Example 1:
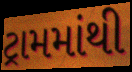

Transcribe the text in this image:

ટ્રામમાંથી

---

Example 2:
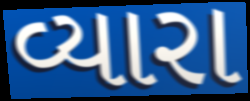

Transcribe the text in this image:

વ્યારા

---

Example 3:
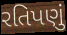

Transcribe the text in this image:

રતિપણું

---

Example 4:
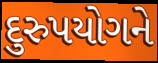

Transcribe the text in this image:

દુરુપયોગને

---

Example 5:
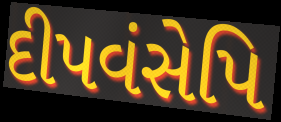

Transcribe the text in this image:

દીપવંસેપિ